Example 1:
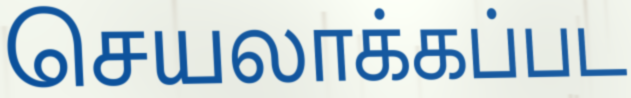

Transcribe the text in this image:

செயலாக்கப்பட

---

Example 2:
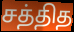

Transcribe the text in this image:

சத்தித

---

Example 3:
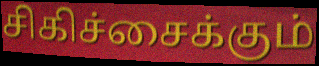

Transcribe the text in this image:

சிகிச்சைக்கும்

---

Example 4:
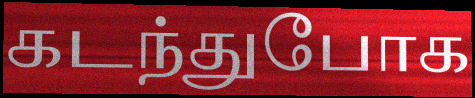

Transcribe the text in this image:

கடந்துபோக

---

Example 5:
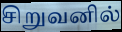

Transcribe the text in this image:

சிறுவனில்